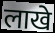
लाखे